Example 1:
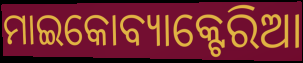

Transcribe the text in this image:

ମାଇକୋବ୍ୟାକ୍ଟେରିଆ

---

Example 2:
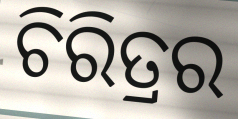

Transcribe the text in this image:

ଚିରିତ୍ରର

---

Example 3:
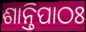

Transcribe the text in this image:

ଶାନ୍ତିପାଠଃ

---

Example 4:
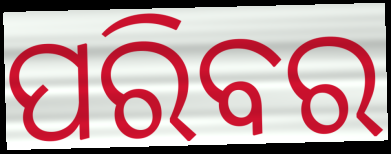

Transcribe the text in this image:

ପରିବର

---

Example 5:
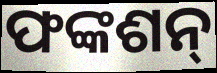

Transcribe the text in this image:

ଫଙ୍କଶନ୍